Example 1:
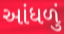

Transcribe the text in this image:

આંધળું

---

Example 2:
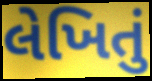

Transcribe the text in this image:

લેખિતું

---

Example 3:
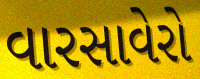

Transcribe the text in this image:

વારસાવેરો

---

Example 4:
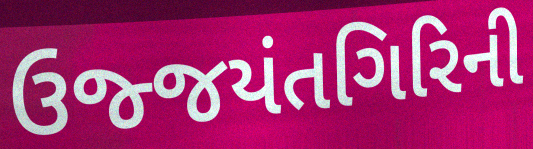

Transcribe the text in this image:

ઉજ્જયંતગિરિની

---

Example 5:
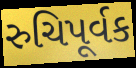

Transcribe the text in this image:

રુચિપૂર્વક